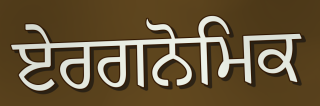
ਏਰਗਨੋਮਿਕ